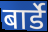
बार्डे